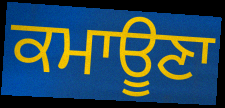
ਕਮਾਊਣਾ